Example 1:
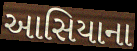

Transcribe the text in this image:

આસિયાના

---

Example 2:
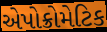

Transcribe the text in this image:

એપોક્રોમેટિક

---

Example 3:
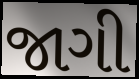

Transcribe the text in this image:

જાગી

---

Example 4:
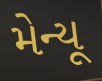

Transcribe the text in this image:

મેન્યૂ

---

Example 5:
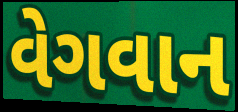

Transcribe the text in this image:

વેગવાન